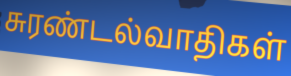
சுரண்டல்வாதிகள்